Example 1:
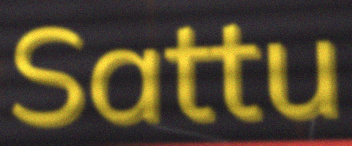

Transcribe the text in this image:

Sattu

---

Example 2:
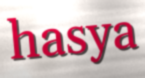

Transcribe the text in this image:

hasya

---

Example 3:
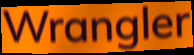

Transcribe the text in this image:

Wrangler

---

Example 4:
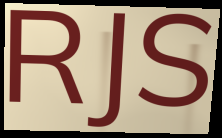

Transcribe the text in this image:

RJS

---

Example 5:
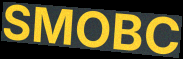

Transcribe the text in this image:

SMOBC